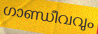
ഗാണ്ഡീവവും